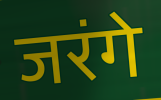
जरंगे